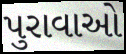
પુરાવાઓ